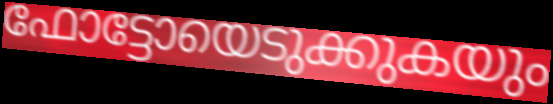
ഫോട്ടോയെടുക്കുകയും